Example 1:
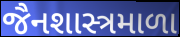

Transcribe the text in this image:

જૈનશાસ્ત્રમાળા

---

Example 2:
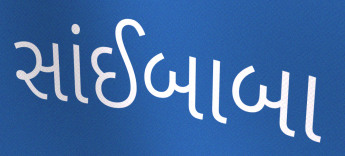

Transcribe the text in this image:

સાંઈબાબા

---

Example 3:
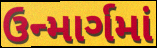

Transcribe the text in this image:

ઉન્માર્ગમાં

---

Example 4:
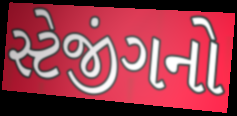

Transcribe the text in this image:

સ્ટેજીંગનો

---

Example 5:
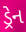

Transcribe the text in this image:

ડ્રેન